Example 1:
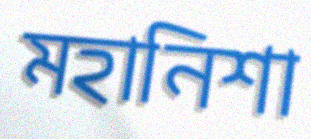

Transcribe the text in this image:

মহানিশা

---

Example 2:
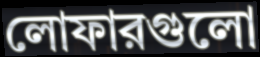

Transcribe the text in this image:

লোফারগুলো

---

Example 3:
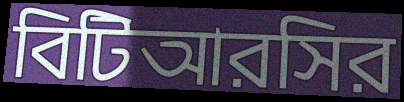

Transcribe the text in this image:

বিটিআরসির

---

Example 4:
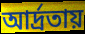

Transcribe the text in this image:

আর্দ্রতায়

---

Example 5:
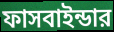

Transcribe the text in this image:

ফাসবাইন্ডার